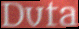
Duta